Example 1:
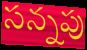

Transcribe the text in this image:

సన్నపు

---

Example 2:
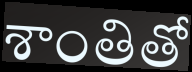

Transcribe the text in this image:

శాంతితో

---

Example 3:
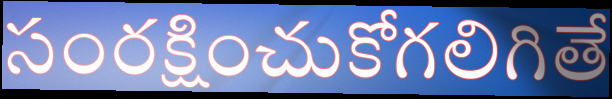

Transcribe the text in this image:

సంరక్షించుకోగలిగితే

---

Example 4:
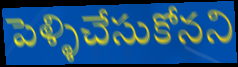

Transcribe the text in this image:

పెళ్ళిచేసుకోనని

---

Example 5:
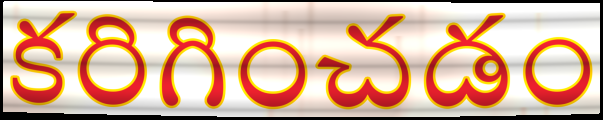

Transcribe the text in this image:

కరిగించడం